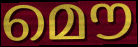
മൌ